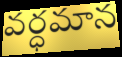
వర్ధమాన